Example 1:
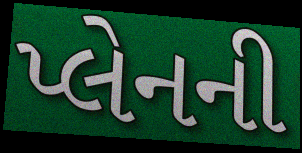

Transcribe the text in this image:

પ્લેનની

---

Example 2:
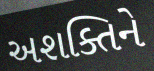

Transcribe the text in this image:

અશક્તિને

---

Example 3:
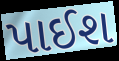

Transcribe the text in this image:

પાઈશ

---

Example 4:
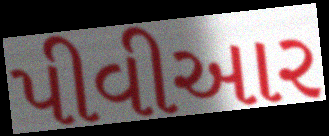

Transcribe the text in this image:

પીવીઆર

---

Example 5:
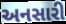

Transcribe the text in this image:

અનસારી